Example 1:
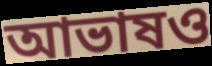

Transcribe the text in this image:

আভাষও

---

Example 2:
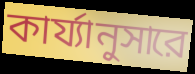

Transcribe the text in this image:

কার্য্যানুসারে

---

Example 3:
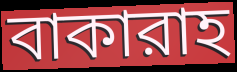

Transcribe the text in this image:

বাকারাহ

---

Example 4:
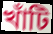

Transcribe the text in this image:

খাঁটি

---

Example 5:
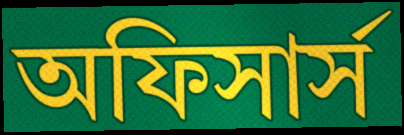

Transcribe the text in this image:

অফিসার্স